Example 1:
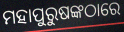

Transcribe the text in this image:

ମହାପୁରୁଷଙ୍କଠାରେ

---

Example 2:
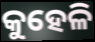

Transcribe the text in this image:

କୁହେଳି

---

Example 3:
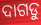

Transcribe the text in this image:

ଦାଗଡୁ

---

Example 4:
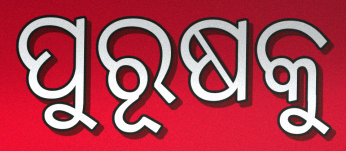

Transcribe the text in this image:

ପୁରୂଷକୁ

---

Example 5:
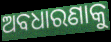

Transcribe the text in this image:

ଅବଧାରଣାକୁ